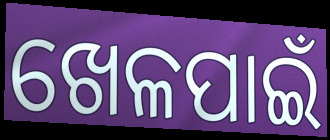
ଖେଳପାଇଁ